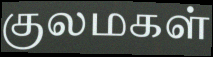
குலமகள்